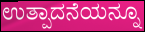
ಉತ್ಪಾದನೆಯನ್ನೂ